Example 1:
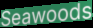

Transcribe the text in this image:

Seawoods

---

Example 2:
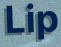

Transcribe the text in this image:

Lip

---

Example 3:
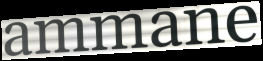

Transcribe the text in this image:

ammane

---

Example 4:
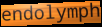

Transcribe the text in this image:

endolymph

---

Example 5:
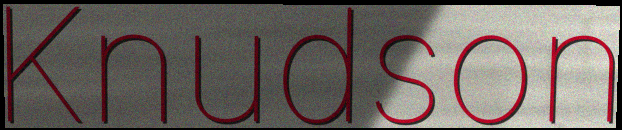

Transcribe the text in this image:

Knudson